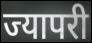
ज्यापरी